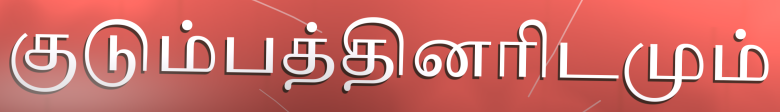
குடும்பத்தினரிடமும்